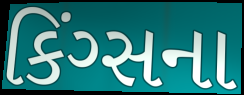
કિંગ્સના